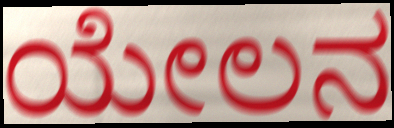
ಯೇಲನ